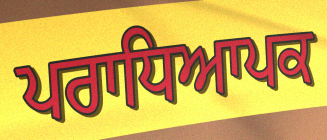
ਪਰਾਧਿਆਪਕ